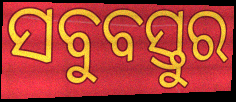
ସବୁବସ୍ତୁର